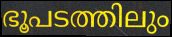
ഭൂപടത്തിലും